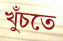
খুঁচতে